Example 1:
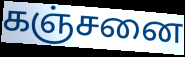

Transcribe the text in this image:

கஞ்சனை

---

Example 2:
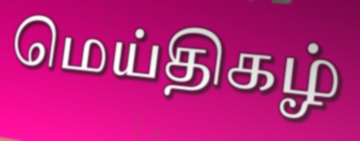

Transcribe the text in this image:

மெய்திகழ்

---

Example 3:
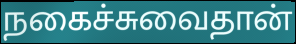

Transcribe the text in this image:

நகைச்சுவைதான்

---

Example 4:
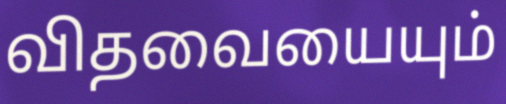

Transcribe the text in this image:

விதவையையும்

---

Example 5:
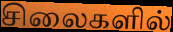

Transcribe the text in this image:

சிலைகளில்